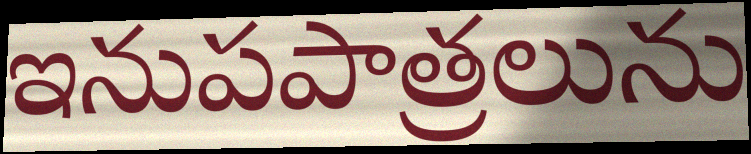
ఇనుపపాత్రలును